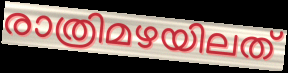
രാത്രിമഴയിലത്